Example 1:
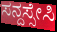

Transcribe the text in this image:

ಸನ್ದಸ್ಸೇಸಿ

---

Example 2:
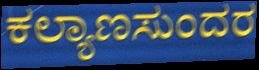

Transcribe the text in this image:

ಕಲ್ಯಾಣಸುಂದರ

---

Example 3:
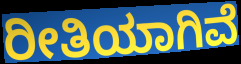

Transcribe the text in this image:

ರೀತಿಯಾಗಿವೆ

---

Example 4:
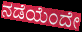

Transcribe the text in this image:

ನಡೆಯೆಂದೇ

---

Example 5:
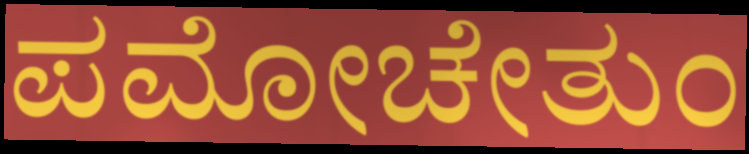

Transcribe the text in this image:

ಪಮೋಚೇತುಂ